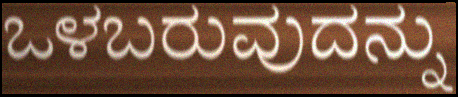
ಒಳಬರುವುದನ್ನು